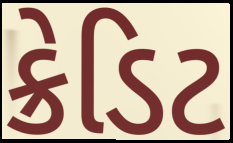
ક્રેડિટ